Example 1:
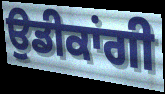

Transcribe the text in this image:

ਉਡੀਕਾਂਗੀ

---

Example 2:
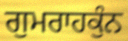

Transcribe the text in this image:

ਗੁਮਰਾਹਕੁੰਨ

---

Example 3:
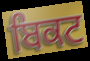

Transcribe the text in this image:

ਬਿਕਟ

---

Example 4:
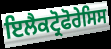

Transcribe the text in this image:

ਇਲੈਕਟ੍ਰੋਫੋਰੇਸਿਸ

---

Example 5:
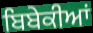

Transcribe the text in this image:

ਬਿਬੇਕੀਆਂ